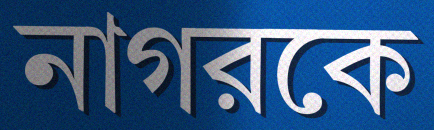
নাগরকে